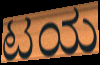
ಟಯ